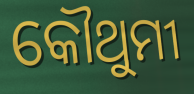
କୌଥୁମୀ